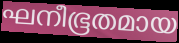
ഘനീഭൂതമായ